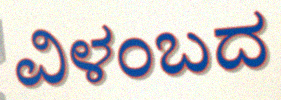
ವಿಳಂಬದ